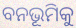
ବନଭୂମିକୁ